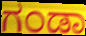
ಗಂಡಾ